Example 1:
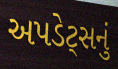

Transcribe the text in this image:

અપડેટ્સનું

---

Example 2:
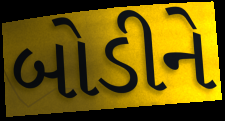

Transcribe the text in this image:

બોડીને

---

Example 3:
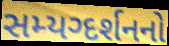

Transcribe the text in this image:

સમ્યગ્દર્શનનો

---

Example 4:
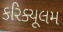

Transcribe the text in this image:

કરિક્યૂલમ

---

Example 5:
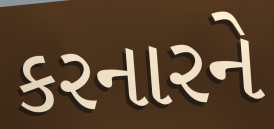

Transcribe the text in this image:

કરનારને